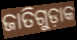
ଜାତିଗୁଡ଼ାକ